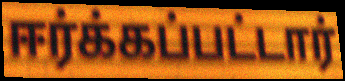
ஈர்க்கப்பட்டார்